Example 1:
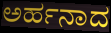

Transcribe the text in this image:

ಅರ್ಹನಾದ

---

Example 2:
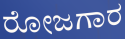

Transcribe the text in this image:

ರೋಜಗಾರ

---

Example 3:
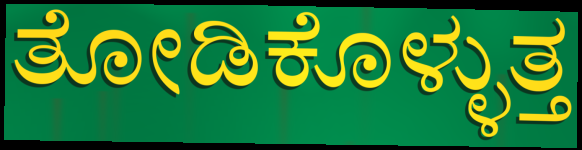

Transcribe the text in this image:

ತೋಡಿಕೊಳ್ಳುತ್ತ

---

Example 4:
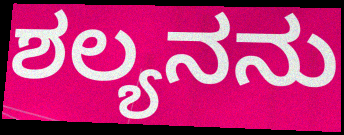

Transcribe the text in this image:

ಶಲ್ಯನನು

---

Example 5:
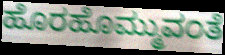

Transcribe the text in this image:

ಹೊರಹೊಮ್ಮುವಂತೆ